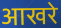
आखरे